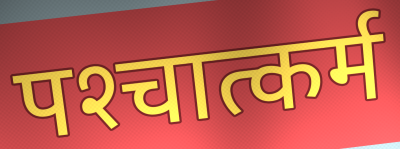
पश्चात्कर्म